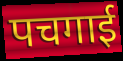
पचगाई